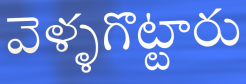
వెళ్ళగొట్టారు